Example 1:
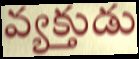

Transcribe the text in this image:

వ్యక్తుడు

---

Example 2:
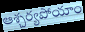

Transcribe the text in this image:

ఆశ్చర్యపోయాం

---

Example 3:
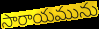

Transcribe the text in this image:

సారాయమును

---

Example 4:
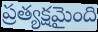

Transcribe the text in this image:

ప్రత్యక్షమైంది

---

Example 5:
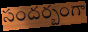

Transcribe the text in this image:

సందర్బంగా